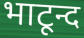
भाटून्द